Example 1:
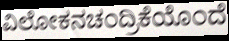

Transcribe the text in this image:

ವಿಲೋಕನಚಂದ್ರಿಕೆಯೊಂದೆ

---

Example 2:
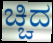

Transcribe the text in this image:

ಚ್ಚಿದ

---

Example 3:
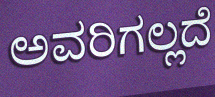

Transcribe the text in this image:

ಅವರಿಗಲ್ಲದೆ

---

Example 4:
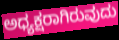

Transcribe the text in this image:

ಅಧ್ಯಕ್ಷರಾಗಿರುವುದು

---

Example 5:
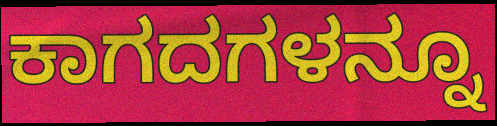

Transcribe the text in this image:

ಕಾಗದಗಳನ್ನೂ